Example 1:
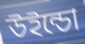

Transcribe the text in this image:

উইন্ডো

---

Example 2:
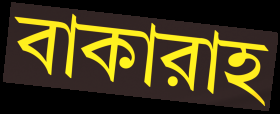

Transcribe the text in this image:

বাকারাহ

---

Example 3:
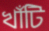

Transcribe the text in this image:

খাঁটি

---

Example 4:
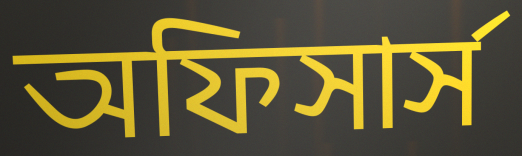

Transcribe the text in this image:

অফিসার্স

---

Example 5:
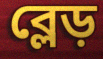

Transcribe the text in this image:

ব্লেড়